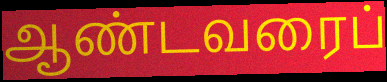
ஆண்டவரைப்